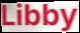
Libby